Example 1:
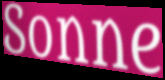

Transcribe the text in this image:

Sonne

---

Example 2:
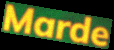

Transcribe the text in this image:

Marde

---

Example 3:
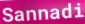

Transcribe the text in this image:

Sannadi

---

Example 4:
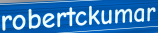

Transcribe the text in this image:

robertckumar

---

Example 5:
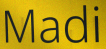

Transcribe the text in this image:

Madi